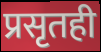
प्रसृतही